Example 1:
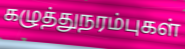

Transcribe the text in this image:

கழுத்துநரம்புகள்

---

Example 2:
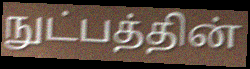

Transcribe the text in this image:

நுட்பத்தின்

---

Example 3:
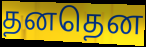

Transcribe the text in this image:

தனதென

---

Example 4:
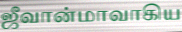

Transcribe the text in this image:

ஜீவான்மாவாகிய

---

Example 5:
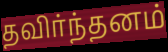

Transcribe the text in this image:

தவிர்ந்தனம்